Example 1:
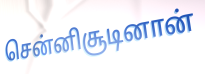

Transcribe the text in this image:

சென்னிசூடினான்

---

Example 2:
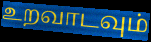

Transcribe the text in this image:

உறவாடவும்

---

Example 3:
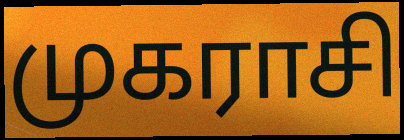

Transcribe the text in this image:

முகராசி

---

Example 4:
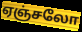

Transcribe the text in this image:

ஏஞ்சலோ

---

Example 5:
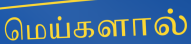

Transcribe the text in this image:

மெய்களால்